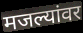
मजल्यांवर